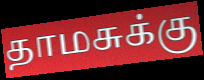
தாமசுக்கு